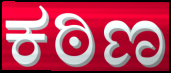
ಕಠಿಣ